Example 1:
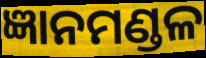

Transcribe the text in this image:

ଜ୍ଞାନମଣ୍ଡଳ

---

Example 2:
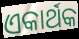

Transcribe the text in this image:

ଏକାର୍ଥକ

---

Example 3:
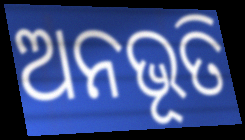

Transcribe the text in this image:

ଅନଭୂତି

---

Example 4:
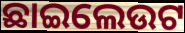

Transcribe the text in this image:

ଛାଇଲେଉଟ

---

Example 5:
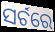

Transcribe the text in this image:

ସର୍ଚରେ